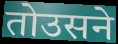
तोउसने